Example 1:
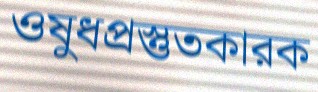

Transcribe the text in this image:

ওষুধপ্রস্তুতকারক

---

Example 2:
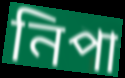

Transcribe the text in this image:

নিপা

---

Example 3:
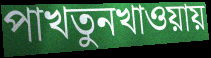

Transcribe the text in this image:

পাখতুনখাওয়ায়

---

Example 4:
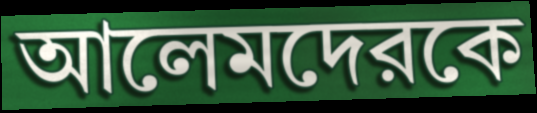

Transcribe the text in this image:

আলেমদেরকে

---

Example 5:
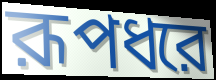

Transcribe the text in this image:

রূপধরে